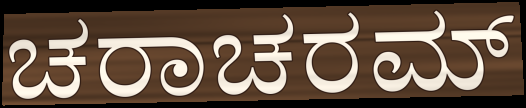
ಚರಾಚರಮ್